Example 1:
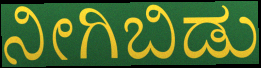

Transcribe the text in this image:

ನೀಗಿಬಿಡು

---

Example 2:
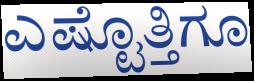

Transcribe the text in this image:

ಎಷ್ಟೊತ್ತಿಗೂ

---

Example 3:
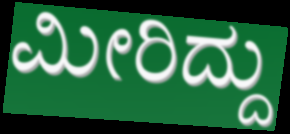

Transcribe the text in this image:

ಮೀರಿದ್ದು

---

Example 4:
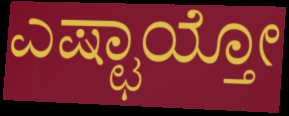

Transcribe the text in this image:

ಎಷ್ಟಾಯ್ತೋ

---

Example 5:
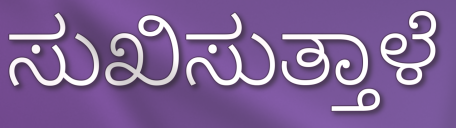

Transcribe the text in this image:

ಸುಖಿಸುತ್ತಾಳೆ